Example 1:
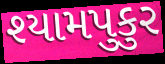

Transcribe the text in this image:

શ્યામપુકુર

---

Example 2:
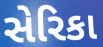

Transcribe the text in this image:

સેરિકા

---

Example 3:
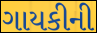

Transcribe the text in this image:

ગાયકીની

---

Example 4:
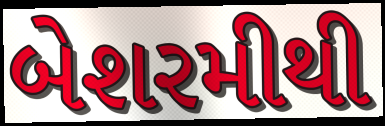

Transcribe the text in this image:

બેશરમીથી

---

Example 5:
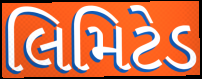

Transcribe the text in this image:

લિમિટેડ